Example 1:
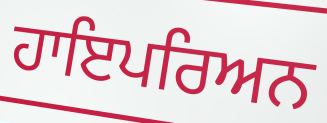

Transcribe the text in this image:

ਹਾਇਪਰਿਅਨ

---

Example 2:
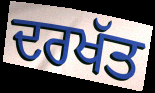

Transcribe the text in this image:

ਦਰਖੱਤ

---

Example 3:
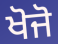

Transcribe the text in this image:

ਖੋਜੋ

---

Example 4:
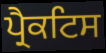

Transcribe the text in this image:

ਪ੍ਰੈਕਟਿਸ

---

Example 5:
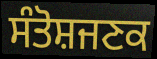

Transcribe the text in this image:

ਸੰਤੋਸ਼ਜਣਕ